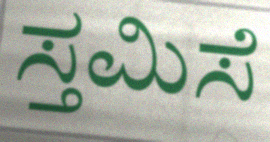
ಸ್ತಮಿಸೆ